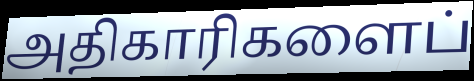
அதிகாரிகளைப்